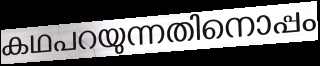
കഥപറയുന്നതിനൊപ്പം